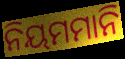
ନିୟମମାନି